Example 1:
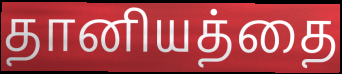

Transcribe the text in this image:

தானியத்தை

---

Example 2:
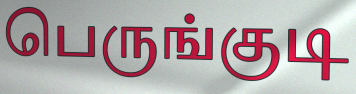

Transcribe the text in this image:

பெருங்குடி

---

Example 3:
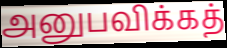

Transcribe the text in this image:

அனுபவிக்கத்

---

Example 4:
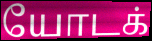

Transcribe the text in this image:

யோடக்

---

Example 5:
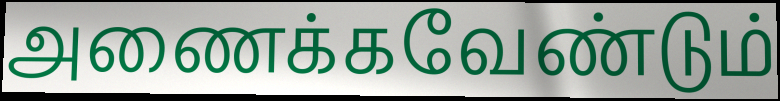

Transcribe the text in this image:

அணைக்கவேண்டும்